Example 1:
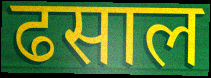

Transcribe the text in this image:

ढसाल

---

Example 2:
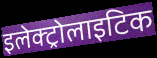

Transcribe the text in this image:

इलेक्ट्रोलाइटिक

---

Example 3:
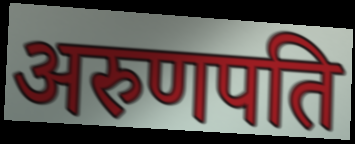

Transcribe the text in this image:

अरुणपति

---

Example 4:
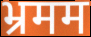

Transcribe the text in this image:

भ्रमम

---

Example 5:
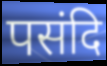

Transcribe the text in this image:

पसंदि